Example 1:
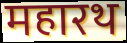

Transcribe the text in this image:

महारथ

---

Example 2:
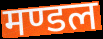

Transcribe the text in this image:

मण्डल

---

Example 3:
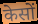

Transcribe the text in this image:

केसों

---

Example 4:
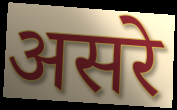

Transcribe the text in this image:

असरे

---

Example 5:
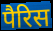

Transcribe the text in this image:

पैरिस